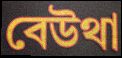
বেউথা